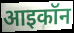
आइकॉन